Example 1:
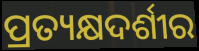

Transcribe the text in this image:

ପ୍ରତ୍ୟକ୍ଷଦର୍ଶୀର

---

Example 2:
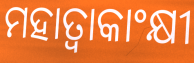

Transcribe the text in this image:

ମହାତ୍ୱାକାଂକ୍ଷୀ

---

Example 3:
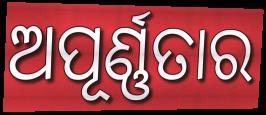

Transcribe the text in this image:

ଅପୂର୍ଣ୍ଣତାର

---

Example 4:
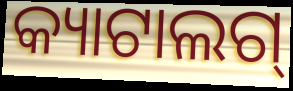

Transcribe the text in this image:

କ୍ୟାଟାଲଗ୍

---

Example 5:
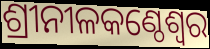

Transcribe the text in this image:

ଶ୍ରୀନୀଳକଣ୍ଠେଶ୍ଵର